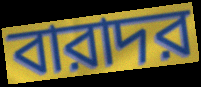
বারাদর